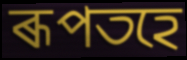
ৰূপতহে